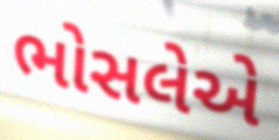
ભોસલેએ